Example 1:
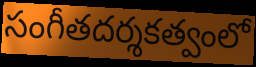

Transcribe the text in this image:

సంగీతదర్శకత్వంలో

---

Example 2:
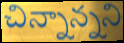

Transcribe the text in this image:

చిన్నాన్నని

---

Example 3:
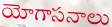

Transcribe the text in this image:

యోగాసనాలు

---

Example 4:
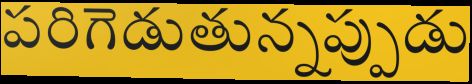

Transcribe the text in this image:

పరిగెడుతున్నప్పుడు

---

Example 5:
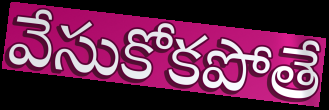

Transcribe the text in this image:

వేసుకోకపోతే